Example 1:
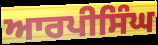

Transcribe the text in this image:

ਆਰਪੀਸਿੰਘ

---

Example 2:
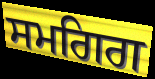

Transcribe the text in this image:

ਸਮਗਿਗ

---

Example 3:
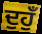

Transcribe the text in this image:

ਦੁਹੁਁ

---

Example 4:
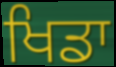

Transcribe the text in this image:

ਖਿਡਾ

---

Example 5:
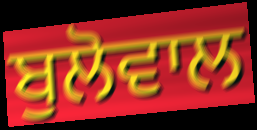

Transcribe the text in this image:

ਬੁਲੋਵਾਲ